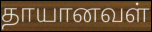
தாயானவள்